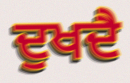
ਦੁਖਦੈ